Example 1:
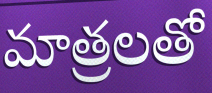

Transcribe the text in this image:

మాత్రలతో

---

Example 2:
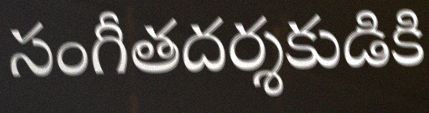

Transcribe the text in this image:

సంగీతదర్శకుడికి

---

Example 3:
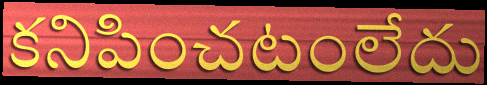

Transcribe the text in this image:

కనిపించటంలేదు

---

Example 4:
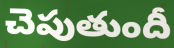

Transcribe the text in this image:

చెపుతుందీ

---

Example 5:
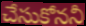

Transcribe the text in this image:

చేసుకోననీ